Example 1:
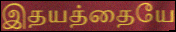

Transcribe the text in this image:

இதயத்தையே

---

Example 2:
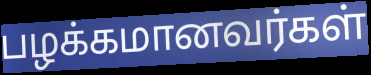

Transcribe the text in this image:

பழக்கமானவர்கள்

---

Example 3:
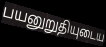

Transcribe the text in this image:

பயனுறுதியுடைய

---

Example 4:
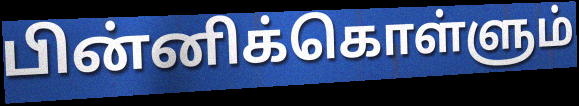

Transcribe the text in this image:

பின்னிக்கொள்ளும்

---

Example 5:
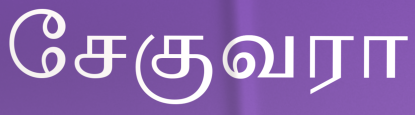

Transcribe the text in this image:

சேகுவரா